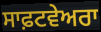
ਸਾਫ਼ਟਵੇਅਰਾ